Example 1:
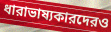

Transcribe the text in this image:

ধারাভাষ্যকারদেরও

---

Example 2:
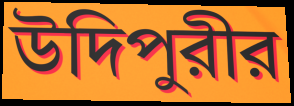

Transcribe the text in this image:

উদিপুরীর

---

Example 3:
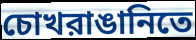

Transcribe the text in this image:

চোখরাঙানিতে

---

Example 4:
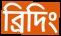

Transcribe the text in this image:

ব্রিদিং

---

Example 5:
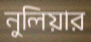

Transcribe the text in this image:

নুলিয়ার